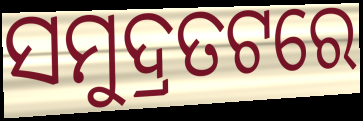
ସମୁଦ୍ରତଟରେ